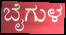
ಬೈಗುಳ